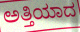
ಅತ್ತಿಯಾದ